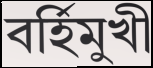
বর্হিমুখী